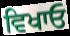
ਵਿਖਾਓ